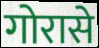
गोरासे